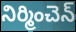
నిర్మించెన్